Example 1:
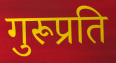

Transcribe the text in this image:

गुरूप्रति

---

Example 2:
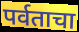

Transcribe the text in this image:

पर्वताचा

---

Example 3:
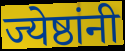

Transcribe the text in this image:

ज्येष्ठांनी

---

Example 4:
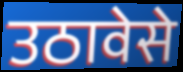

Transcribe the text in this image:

उठावेसे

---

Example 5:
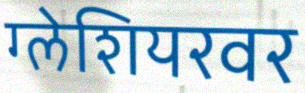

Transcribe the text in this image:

ग्लेशियरवर